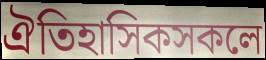
ঐতিহাসিকসকলে